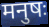
मनुषः